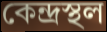
কেন্দ্ৰস্থল